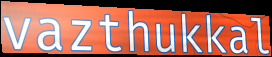
vazthukkal